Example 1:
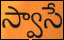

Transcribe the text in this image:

స్వాసే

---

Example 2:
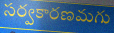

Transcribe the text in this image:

సర్వకారణమగు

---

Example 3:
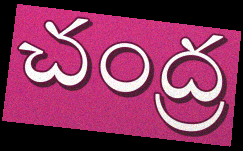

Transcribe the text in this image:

చంద్ర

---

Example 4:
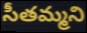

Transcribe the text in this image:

సీతమ్మని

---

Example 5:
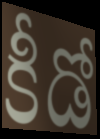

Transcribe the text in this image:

కీడో